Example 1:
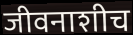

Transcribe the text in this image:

जीवनाशीच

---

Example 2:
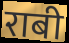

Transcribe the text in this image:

राबी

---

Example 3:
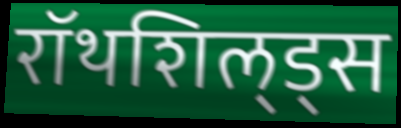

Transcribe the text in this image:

रॉथशिल्ड्स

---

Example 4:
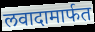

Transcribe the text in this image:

लवादामार्फत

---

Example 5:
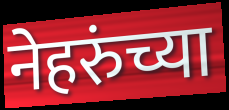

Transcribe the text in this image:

नेहरुंच्या